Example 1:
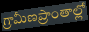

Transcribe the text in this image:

గ్రామీణప్రాంతాల్లో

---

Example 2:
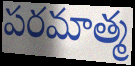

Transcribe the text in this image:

పరమాత్మ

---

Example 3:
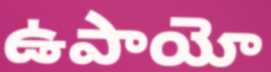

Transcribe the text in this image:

ఉపాయో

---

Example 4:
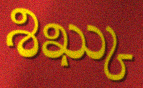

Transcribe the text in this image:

శిఖ్కు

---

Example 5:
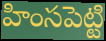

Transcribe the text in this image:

హింసపెట్టి